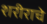
शरीराचे